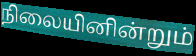
நிலையினின்றும்